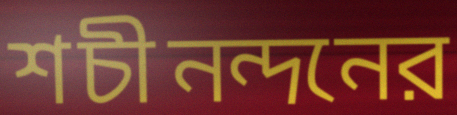
শচীনন্দনের